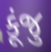
કૂંજુ